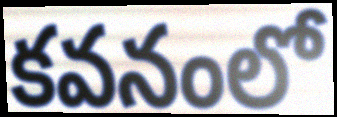
కవనంలో